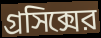
গ্রসিক্সের